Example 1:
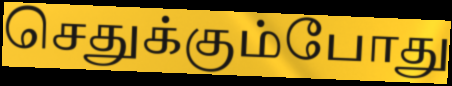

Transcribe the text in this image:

செதுக்கும்போது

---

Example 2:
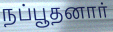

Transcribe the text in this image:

நப்பூதனார்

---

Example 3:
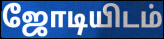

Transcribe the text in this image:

ஜோடியிடம்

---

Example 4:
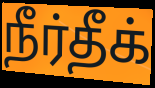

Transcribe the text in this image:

நீர்தீக்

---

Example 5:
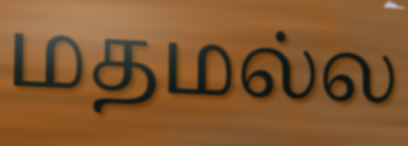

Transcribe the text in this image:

மதமல்ல